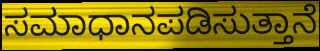
ಸಮಾಧಾನಪಡಿಸುತ್ತಾನೆ